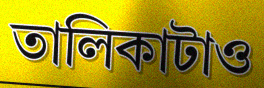
তালিকাটাও